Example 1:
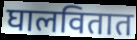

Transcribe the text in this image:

घालवितात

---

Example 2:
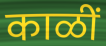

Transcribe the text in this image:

काळीं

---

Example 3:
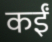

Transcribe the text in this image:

कईं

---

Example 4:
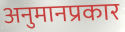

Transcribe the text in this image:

अनुमानप्रकार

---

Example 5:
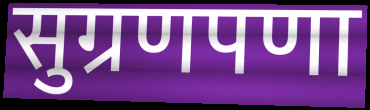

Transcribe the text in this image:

सुग्रणपणा